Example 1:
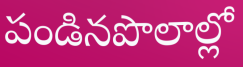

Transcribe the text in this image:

పండినపొలాల్లో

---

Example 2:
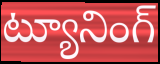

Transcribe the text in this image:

ట్యూనింగ్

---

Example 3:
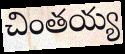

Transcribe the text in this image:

చింతయ్య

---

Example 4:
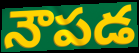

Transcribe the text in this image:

నౌపడ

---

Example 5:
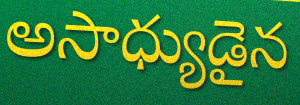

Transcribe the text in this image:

అసాధ్యుడైన